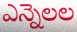
ఎన్నెలల